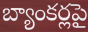
బ్యాంకర్లపై